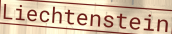
Liechtenstein